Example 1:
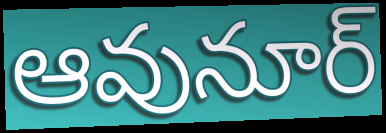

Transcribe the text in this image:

ఆవునూర్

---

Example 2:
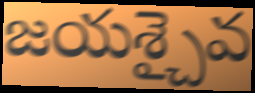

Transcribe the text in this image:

జయశ్చైవ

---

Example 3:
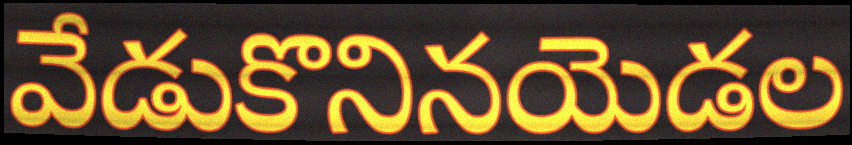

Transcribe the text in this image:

వేడుకొనినయెడల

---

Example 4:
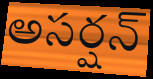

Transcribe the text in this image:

అసర్షన్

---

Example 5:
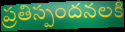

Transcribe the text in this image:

ప్రతిస్పందనలకి